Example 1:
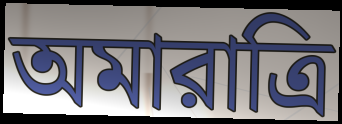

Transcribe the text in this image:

অমারাত্রি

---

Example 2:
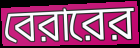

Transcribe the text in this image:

বেরারের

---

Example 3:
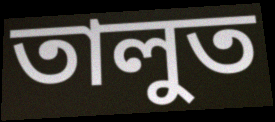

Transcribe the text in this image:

তালুত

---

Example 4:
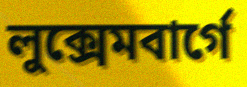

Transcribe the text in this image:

লুক্সেমবার্গে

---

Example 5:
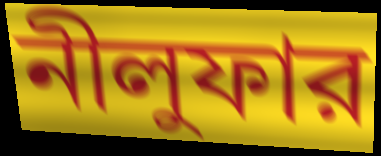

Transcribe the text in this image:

নীলুফার